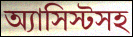
অ্যাসিস্টসহ